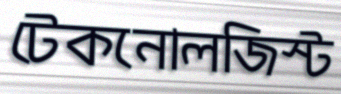
টেকনোলজিস্ট